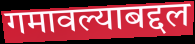
गमावल्याबद्दल